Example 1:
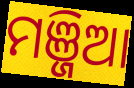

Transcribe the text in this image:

ମଞ୍ଜିଆ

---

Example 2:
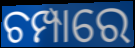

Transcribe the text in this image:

ଚମ୍ପାରେ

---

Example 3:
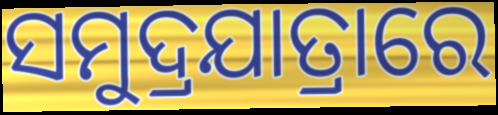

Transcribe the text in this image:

ସମୁଦ୍ରଯାତ୍ରାରେ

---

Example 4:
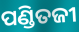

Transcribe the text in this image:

ପଣ୍ଡିତଜୀ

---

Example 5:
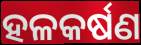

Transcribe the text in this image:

ହଳକର୍ଷଣ